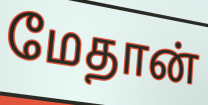
மேதான்